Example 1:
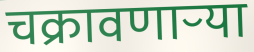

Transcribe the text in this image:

चक्रावणाऱ्या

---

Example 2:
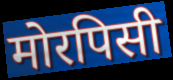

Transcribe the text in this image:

मोरपिसी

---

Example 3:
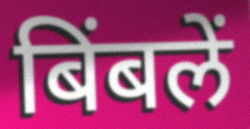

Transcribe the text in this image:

बिंबलें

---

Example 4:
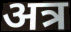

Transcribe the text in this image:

अत्र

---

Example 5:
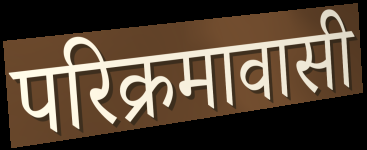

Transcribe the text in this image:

परिक्रमावासी